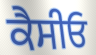
ਕੈਸੀਓ